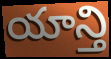
యాన్తి